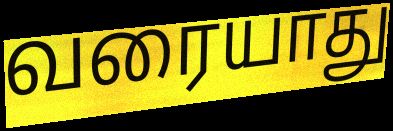
வரையாது